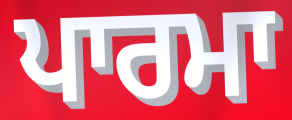
ਪਾਰਮਾ